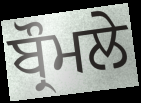
ਬ੍ਰੌਮਲੇ